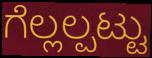
ಗೆಲ್ಲಲ್ಪಟ್ಟು